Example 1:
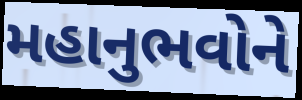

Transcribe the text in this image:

મહાનુભવોને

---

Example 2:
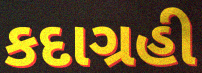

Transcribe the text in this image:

કદાગ્રહી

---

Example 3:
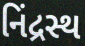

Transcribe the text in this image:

નિંદ્રસ્થ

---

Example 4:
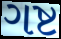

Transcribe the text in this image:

ગષ્ટ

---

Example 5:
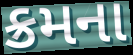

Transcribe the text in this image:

ક્રમના